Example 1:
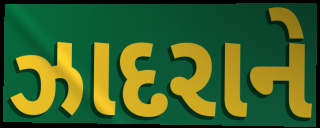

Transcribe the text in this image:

ઝાદરાને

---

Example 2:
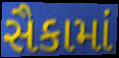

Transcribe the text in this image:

સૈકામાં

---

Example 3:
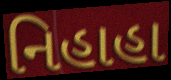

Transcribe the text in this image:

નિહાહા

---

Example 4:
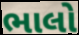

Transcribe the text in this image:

ભાલો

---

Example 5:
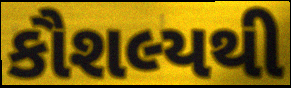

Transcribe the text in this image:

કૌશલ્યથી